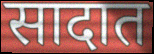
सादात